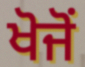
ਖੋਜੋਂ